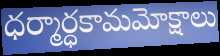
ధర్మార్ధకామమోక్షాలు